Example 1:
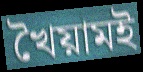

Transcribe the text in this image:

খৈয়ামই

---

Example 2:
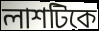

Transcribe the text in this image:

লাশটিকে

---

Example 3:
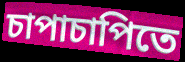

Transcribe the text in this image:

চাপাচাপিতে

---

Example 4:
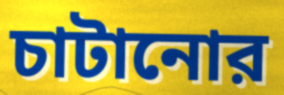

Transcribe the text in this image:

চাটানোর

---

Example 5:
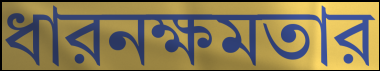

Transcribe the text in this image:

ধারনক্ষমতার